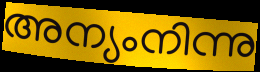
അന്യംനിന്നു